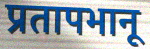
प्रतापभानू